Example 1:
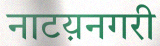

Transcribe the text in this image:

नाटय़नगरी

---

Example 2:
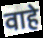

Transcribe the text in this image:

वाहे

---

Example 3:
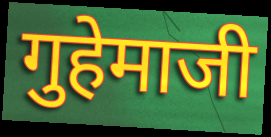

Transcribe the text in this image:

गुहेमाजी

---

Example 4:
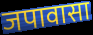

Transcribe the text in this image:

जपावासा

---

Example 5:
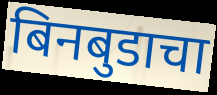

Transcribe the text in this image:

बिनबुडाचा